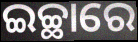
ଇଚ୍ଛାରେ